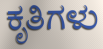
ಕೃತಿಗಳು